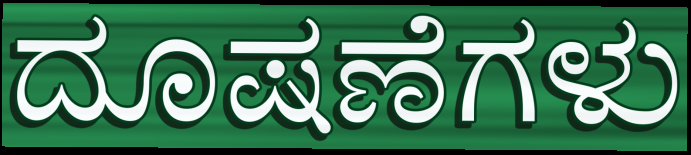
ದೂಷಣೆಗಳು